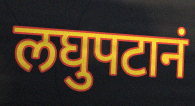
लघुपटानं